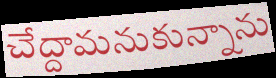
చేద్దామనుకున్నాను